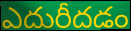
ఎదురీదడం